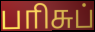
பரிசுப்